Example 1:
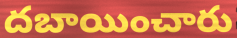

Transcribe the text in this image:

దబాయించారు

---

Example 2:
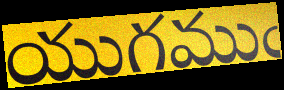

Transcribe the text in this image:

యుగముఁ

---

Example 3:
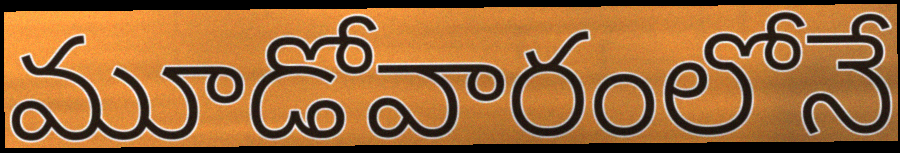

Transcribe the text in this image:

మూడోవారంలోనే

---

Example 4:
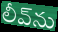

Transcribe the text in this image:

లీవ్‌ను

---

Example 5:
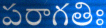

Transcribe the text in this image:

పరాగతిః